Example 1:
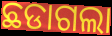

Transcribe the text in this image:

ଛଡାଗଲା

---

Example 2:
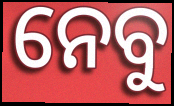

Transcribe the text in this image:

ନେବୁ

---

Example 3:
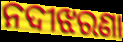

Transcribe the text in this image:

ନଦୀଝରଣା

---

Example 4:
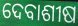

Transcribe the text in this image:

ଦେବାଶୀଷ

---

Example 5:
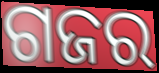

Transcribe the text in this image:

ଗଜର